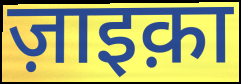
ज़ाइक़ा